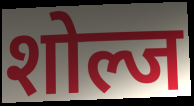
शोल्ज